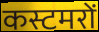
कस्टमरों